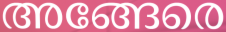
അങ്ങേരെ